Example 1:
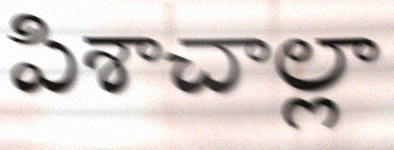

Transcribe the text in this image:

పిశాచాల్లా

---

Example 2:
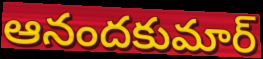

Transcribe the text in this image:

ఆనందకుమార్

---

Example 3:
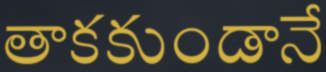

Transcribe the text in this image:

తాకకుండానే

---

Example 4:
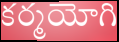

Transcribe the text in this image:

కర్మయోగి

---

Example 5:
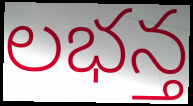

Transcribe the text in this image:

లభన్త